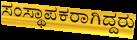
ಸಂಸ್ಥಾಪಕರಾಗಿದ್ದರು